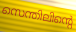
സെന്തിലിന്റെ